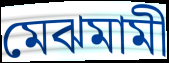
মেঝমামী